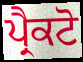
ਪ੍ਰੈਕਟੋ